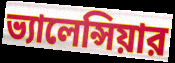
ভ্যালেন্সিয়ার